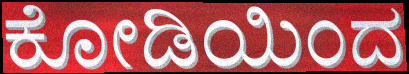
ಕೋಡಿಯಿಂದ